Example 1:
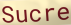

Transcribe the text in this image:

Sucre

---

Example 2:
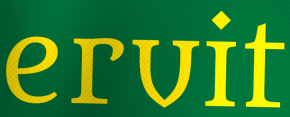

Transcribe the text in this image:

eruit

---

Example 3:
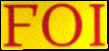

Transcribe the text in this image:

FOI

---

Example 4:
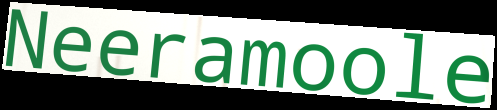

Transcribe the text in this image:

Neeramoole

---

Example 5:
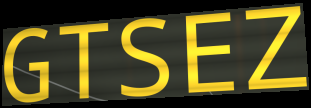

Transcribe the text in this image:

GTSEZ